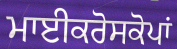
ਮਾਈਕਰੋਸਕੋਪਾਂ